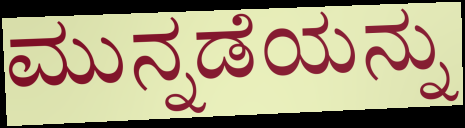
ಮುನ್ನಡೆಯನ್ನು